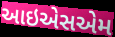
આઇએસએમ